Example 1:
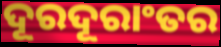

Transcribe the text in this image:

ଦୂରଦୂରାଂତର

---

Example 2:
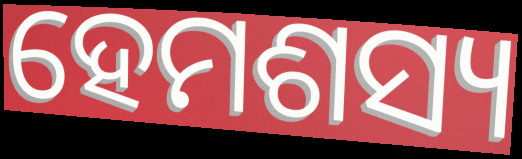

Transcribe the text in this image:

ହେମଶସ୍ୟ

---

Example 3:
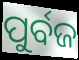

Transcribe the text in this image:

ପୁର୍ବଜ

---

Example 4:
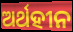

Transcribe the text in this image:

ଅର୍ଥହୀନ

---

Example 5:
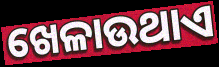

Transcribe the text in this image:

ଖେଳାଉଥାଏ